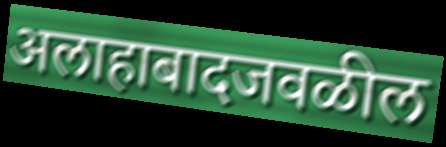
अलाहाबादजवळील